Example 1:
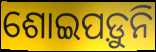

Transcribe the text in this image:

ଶୋଇପଡ଼ୁନି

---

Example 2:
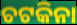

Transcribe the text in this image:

ଚଟକିନା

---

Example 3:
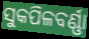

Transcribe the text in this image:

ସୁକପିଳବର୍ଣ୍ଣା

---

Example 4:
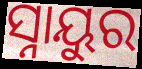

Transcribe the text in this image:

ସ୍ନାୟୁର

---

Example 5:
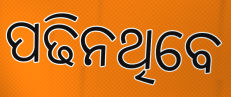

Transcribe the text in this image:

ପଢିନଥିବେ